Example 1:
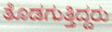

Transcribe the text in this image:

ತೊಡಗುತ್ತಿದ್ದರು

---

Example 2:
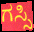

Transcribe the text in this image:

ಗಸ್ಸಿ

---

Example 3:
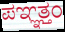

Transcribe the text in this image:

ಪಞ್ಞತ್ತಂ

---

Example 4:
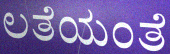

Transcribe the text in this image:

ಲತೆಯಂತೆ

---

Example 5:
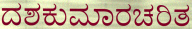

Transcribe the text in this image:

ದಶಕುಮಾರಚರಿತ